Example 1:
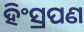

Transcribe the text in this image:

ହିଂସ୍ରପଣ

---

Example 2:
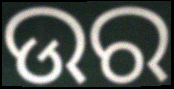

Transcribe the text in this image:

ଉର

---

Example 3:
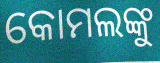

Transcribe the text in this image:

କୋମଲଙ୍କୁ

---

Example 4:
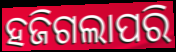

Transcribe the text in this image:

ହଜିଗଲାପରି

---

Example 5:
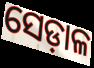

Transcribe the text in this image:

ସେଡ଼ାଳ